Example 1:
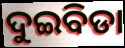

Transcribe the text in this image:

ଦୁଇବିଡା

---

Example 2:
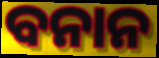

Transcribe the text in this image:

ବନାନ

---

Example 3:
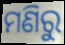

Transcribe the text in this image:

ମଣିରୁ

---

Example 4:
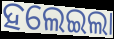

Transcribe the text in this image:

ହଲେଇଲା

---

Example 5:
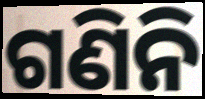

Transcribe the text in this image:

ଗଣିନି